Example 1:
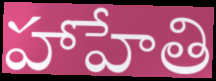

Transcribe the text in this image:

హాహేతి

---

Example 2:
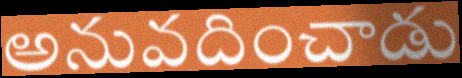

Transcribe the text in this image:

అనువదించాడు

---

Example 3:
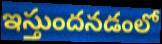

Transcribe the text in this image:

ఇస్తుందనడంలో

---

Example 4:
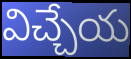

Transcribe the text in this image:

విచ్చేయ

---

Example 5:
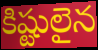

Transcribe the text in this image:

కిష్టులైన